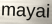
mayai